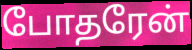
போதரேன்